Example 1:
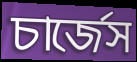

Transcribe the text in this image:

চার্জেস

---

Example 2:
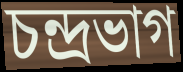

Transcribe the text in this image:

চন্দ্রভাগ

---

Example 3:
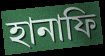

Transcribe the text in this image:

হানাফি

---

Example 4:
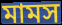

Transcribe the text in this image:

মামস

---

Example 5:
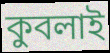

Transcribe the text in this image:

কুবলাই